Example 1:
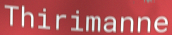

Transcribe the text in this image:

Thirimanne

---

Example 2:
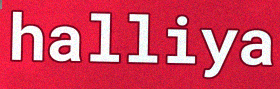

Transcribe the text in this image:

halliya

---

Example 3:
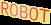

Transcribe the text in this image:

ROBOT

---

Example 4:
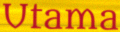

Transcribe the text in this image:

Utama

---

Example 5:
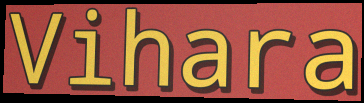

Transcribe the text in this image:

Vihara